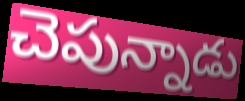
చెపున్నాడు